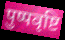
पुष्पवृष्टि